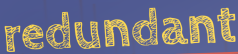
redundant